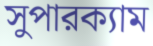
সুপারক্যাম